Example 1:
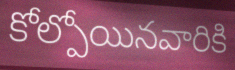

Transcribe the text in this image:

కోల్పోయినవారికి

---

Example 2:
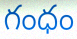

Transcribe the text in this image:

గంధం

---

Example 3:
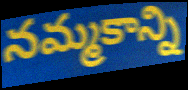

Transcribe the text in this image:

నమ్మకాన్ని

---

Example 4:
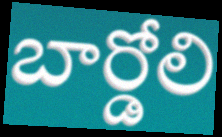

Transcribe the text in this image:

బార్డోలి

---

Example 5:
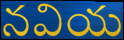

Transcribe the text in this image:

నవియ